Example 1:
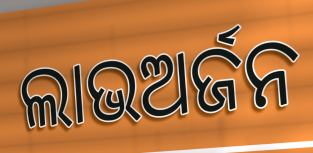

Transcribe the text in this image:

ଲାଭଅର୍ଜନ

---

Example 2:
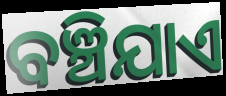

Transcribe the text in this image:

ବଞ୍ଚିଯାଏ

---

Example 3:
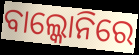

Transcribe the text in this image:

ବାଲ୍କୋନିରେ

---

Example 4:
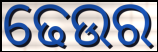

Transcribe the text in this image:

ଢେଉର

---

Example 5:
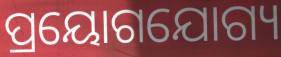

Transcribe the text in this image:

ପ୍ରୟୋଗଯୋଗ୍ୟ